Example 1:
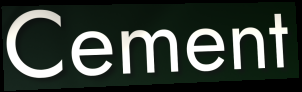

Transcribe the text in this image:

Cement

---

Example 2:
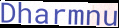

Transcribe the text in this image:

Dharmnu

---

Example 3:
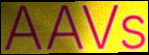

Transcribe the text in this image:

AAVs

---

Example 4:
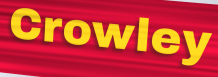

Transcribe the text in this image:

Crowley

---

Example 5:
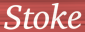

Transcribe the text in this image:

Stoke